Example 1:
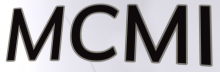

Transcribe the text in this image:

MCMI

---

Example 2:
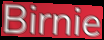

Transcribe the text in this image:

Birnie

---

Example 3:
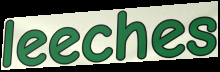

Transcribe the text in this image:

leeches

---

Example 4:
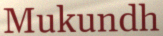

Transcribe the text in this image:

Mukundh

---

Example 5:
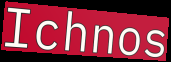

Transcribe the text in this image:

Ichnos